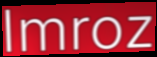
Imroz